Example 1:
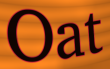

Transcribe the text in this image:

Oat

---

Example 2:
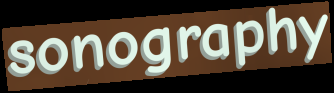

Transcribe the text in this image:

sonography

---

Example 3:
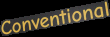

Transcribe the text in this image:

Conventional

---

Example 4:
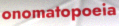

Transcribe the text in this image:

onomatopoeia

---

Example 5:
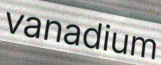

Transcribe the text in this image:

vanadium